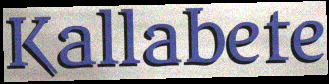
Kallabete